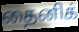
தைனிக்